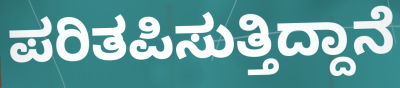
ಪರಿತಪಿಸುತ್ತಿದ್ದಾನೆ